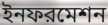
ইনফরমেশন